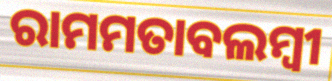
ରାମମତାବଲମ୍ବୀ